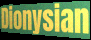
Dionysian